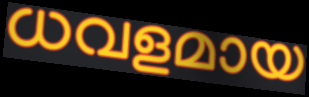
ധവളമായ